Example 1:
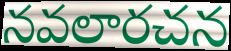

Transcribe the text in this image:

నవలారచన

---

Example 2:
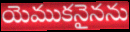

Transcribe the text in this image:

యెముకనైనను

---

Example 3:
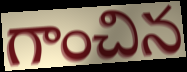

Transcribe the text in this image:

గాంచిన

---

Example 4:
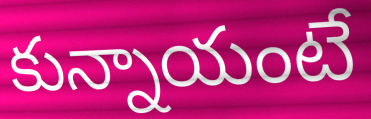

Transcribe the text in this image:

కున్నాయంటే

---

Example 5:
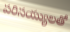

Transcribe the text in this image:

పరిసయ్యులతో